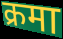
क्रमा